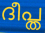
ദീപ്ത